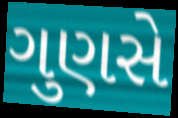
ગુણસે